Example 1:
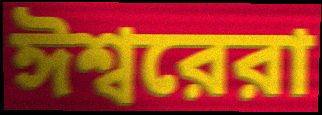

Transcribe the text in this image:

ঈশ্বরেরা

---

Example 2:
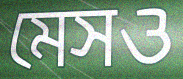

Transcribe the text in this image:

মেসও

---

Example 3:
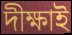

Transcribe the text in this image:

দীক্ষাই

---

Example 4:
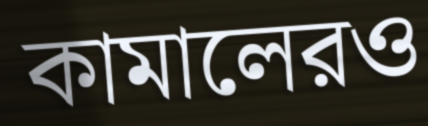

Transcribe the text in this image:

কামালেরও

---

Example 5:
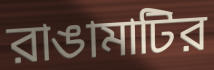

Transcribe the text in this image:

রাঙামাটির